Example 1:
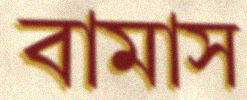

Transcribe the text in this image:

বামাস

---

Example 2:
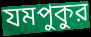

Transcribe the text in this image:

যমপুকুর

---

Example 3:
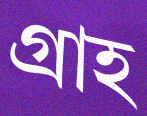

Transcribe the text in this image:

গ্রাহ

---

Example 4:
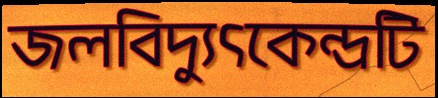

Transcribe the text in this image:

জলবিদ্যুৎকেন্দ্রটি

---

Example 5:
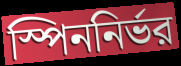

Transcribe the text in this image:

স্পিননির্ভর